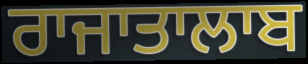
ਰਾਜਾਤਾਲਾਬ